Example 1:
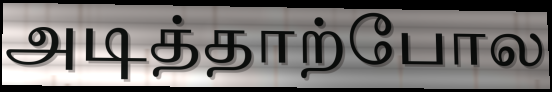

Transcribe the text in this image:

அடித்தாற்போல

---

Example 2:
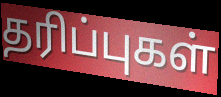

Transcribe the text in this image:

தரிப்புகள்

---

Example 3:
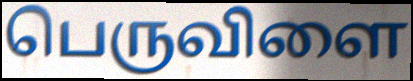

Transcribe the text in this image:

பெருவிளை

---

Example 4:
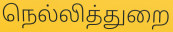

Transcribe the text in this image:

நெல்லித்துறை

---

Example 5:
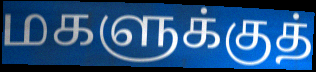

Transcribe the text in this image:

மகளுக்குத்